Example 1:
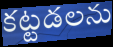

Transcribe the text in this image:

కట్టడలను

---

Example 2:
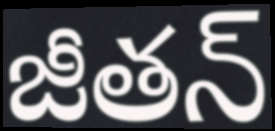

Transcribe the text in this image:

జీతన్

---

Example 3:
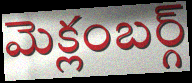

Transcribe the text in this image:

మెక్లంబర్గ్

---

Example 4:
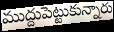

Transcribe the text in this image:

ముద్దుపెట్టుకున్నారు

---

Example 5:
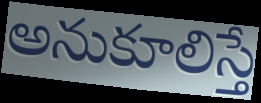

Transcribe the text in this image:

అనుకూలిస్తే